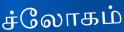
ச்லோகம்